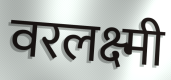
वरलक्ष्‍मी